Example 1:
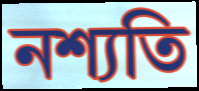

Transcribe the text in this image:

নশ্যতি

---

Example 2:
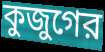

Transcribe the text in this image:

কুজুগের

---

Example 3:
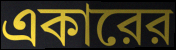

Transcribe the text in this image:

একারের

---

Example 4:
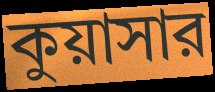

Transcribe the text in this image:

কুয়াসার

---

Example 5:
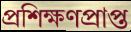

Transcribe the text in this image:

প্রশিক্ষণপ্রাপ্ত